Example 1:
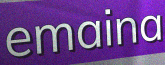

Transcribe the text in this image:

emaina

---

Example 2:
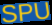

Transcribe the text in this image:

SPU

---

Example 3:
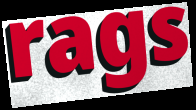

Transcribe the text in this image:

rags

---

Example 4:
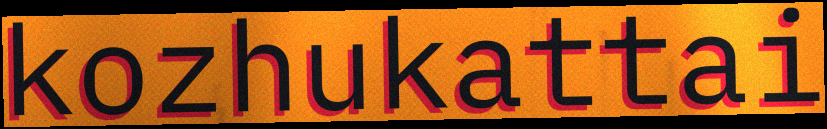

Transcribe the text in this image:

kozhukattai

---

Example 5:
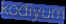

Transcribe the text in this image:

kodiyum